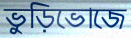
ভুড়িভোজে